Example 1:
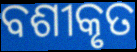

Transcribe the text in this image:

ବଶୀକୃତ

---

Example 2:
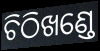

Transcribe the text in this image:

ଚିଠିଖଣ୍ଡେ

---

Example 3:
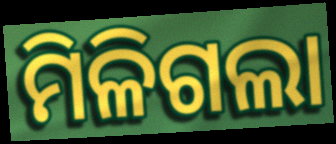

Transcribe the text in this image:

ମିଳିଗଲା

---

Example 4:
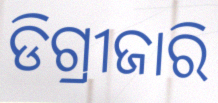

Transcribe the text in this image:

ଡିଗ୍ରୀଜାରି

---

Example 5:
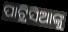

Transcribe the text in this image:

ପାଟ୍ରିସିଆଙ୍କୁ